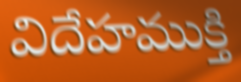
విదేహముక్తి